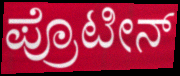
ಪ್ರೊಟೀನ್